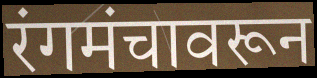
रंगमंचावरून